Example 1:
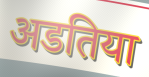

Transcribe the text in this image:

अडतिया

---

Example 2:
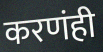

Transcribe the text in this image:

करणंही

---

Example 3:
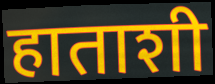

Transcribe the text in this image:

हाताशी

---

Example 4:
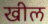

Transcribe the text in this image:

खील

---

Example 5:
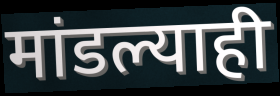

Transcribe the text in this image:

मांडल्याही